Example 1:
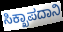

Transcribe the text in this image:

ಸಿಕ್ಖಾಪದಾನಿ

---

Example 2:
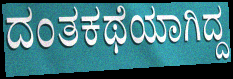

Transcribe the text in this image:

ದಂತಕಥೆಯಾಗಿದ್ದ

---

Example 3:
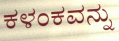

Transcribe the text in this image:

ಕಳಂಕವನ್ನು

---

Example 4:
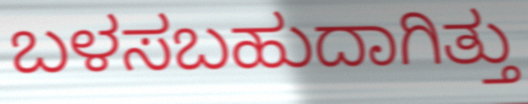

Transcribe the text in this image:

ಬಳಸಬಹುದಾಗಿತ್ತು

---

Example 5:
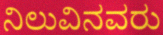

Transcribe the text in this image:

ನಿಲುವಿನವರು